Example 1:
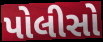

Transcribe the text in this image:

પોલીસો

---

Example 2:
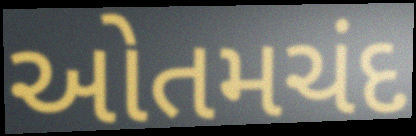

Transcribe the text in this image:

ઓતમચંદ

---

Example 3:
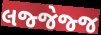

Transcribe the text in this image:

લજ્જેજ્જ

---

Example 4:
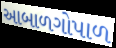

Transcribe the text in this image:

આબાળગોપાળ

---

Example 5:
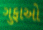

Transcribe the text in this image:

ગુફાઓ